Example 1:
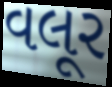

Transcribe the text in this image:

વલૂર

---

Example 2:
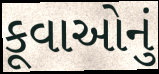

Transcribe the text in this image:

કૂવાઓનું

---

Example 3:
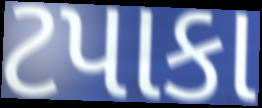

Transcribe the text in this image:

ટપાકા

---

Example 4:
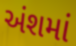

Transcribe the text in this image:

અંશમાં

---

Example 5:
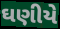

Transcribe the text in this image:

ઘણીયે